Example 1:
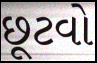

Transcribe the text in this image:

છૂટવો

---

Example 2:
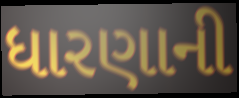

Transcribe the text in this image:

ધારણાની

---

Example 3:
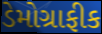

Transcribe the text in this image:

ડેમોગ્રાફીક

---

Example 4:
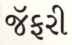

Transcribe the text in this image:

જૅફરી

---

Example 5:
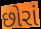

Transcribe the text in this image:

છોરાં